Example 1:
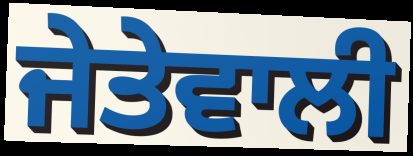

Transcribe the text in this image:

ਜੇਤੇਵਾਲੀ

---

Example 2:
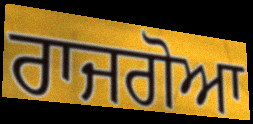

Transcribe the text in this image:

ਰਾਜਗੋਆ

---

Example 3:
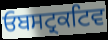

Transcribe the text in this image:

ਓਬਸਟ੍ਰਕਟਿਵ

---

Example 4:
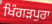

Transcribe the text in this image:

ਖਿੰਗੜਪੁਰਾ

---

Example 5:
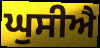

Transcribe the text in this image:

ਘੁਸੀਐ